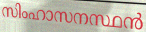
സിംഹാസനസ്ഥൻ